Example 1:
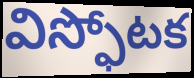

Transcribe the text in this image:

విస్ఫోటక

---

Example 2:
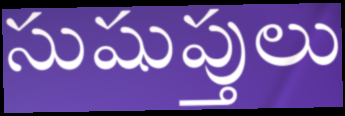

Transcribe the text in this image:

సుషుప్తులు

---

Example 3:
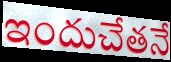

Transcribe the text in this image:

ఇందుచేతనే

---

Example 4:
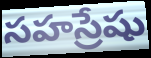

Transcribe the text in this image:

సహస్రేషు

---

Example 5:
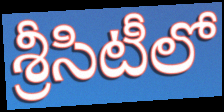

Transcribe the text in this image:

శ్రీసిటీలో